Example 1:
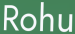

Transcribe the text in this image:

Rohu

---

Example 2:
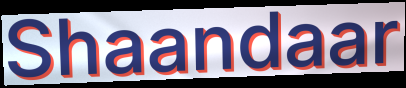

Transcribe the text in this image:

Shaandaar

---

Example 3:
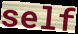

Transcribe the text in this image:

self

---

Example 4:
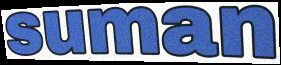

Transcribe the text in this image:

suman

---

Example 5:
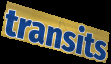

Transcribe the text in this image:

transits